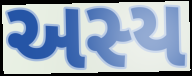
અસ્ય